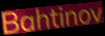
Bahtinov